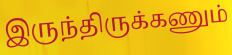
இருந்திருக்கணும்